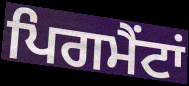
ਪਿਗਮੈਂਟਾਂ